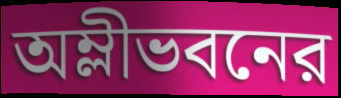
অম্লীভবনের